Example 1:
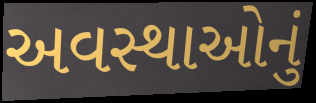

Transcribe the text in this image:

અવસ્થાઓનું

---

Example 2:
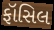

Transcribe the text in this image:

ફૉસિલ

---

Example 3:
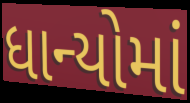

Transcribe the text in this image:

ધાન્યોમાં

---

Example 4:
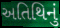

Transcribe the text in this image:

અતિથિનું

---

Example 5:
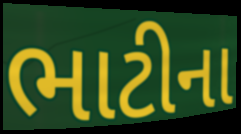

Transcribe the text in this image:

ભાટીના